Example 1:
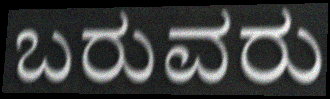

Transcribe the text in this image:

ಬರುವರು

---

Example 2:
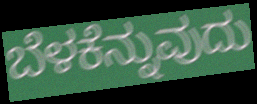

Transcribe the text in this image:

ಬೆಳಕೆನ್ನುವುದು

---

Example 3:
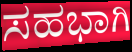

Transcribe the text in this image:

ಸಹಭಾಗಿ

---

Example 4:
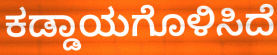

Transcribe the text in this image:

ಕಡ್ಡಾಯಗೊಳಿಸಿದೆ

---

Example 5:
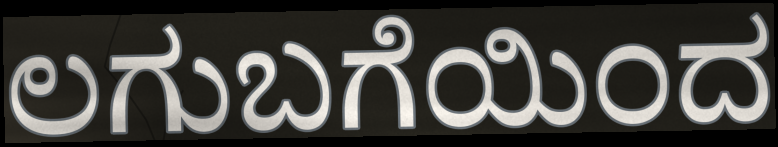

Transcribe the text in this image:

ಲಗುಬಗೆಯಿಂದ